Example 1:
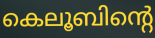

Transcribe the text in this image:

കെലൂബിന്റെ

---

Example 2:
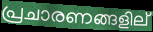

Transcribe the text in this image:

പ്രചാരണങ്ങളില്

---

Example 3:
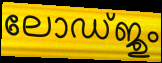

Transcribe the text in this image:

ലോഡ്ജും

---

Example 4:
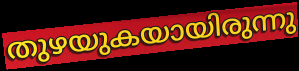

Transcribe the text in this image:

തുഴയുകയായിരുന്നു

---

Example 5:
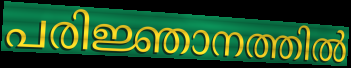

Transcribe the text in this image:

പരിജ്ഞാനത്തിൽ